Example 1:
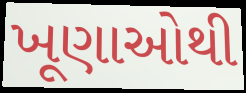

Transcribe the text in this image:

ખૂણાઓથી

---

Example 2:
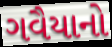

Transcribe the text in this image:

ગવૈયાનો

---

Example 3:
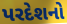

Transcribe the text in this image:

પરદેશનો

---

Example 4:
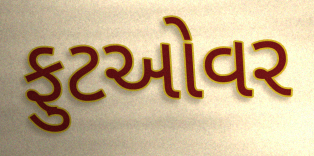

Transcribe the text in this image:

ફુટઓવર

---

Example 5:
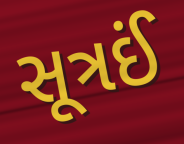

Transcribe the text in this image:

સૂત્રઈં